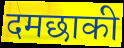
दमछाकी